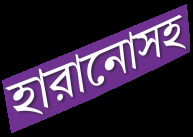
হারানোসহ